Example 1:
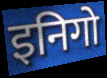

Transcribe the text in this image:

इनिगो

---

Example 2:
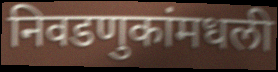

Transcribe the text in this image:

निवडणुकांमधली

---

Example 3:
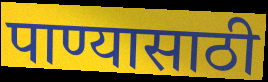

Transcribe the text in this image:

पाण्यासाठी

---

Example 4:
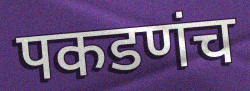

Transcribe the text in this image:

पकडणंच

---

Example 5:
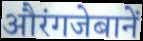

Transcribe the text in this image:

औरंगजेबानें